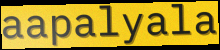
aapalyala